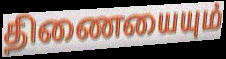
திணையையும்